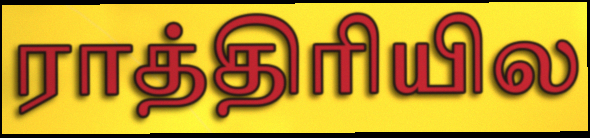
ராத்திரியில